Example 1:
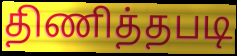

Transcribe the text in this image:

திணித்தபடி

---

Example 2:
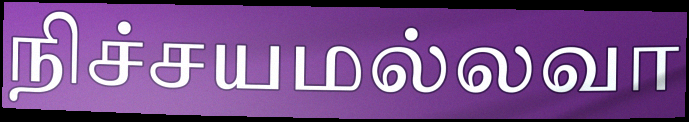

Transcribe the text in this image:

நிச்சயமல்லவா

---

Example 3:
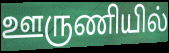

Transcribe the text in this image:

ஊருணியில்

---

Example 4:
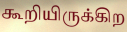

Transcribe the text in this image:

கூறியிருக்கிற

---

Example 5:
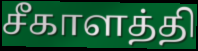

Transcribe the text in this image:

சீகாளத்தி